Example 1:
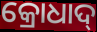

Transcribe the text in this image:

କ୍ରୋଧାଦ୍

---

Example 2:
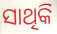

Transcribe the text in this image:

ସାଥିକି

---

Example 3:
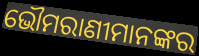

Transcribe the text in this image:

ଭୌମରାଣୀମାନଙ୍କର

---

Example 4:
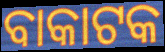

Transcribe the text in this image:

ବାକାଟକ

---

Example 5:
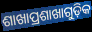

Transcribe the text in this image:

ଶାଖାପ୍ରଶାଖାଗୁଡ଼ିକ